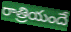
రాత్రియందే